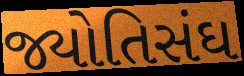
જ્યોતિસંઘ